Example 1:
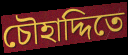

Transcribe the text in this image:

চৌহাদ্দিতে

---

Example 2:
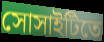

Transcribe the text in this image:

সোসাইটিতে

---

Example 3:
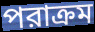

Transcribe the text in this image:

পরাক্রম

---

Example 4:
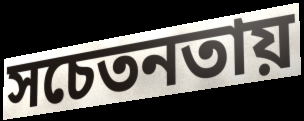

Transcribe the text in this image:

সচেতনতায়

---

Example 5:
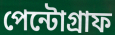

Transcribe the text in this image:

পেন্টোগ্রাফ